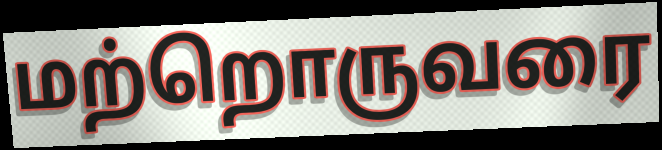
மற்றொருவரை